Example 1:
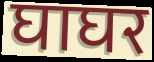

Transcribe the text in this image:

घाघर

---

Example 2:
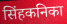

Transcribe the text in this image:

सिंहकनिका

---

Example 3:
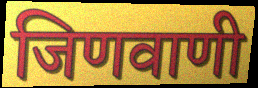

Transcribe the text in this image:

जिणवाणी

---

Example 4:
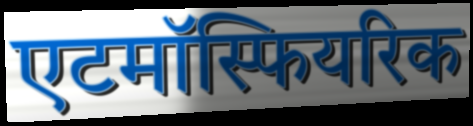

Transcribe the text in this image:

एटमॉस्फियरिक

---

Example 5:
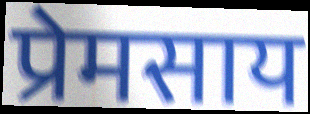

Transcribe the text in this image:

प्रेमसाय